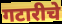
गटारीचे